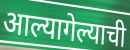
आल्यागेल्याची